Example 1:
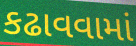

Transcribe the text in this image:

કઢાવવામાં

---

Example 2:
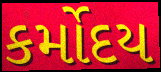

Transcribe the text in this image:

કર્મોદય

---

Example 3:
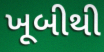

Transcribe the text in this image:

ખૂબીથી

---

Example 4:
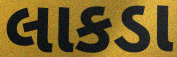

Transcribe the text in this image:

લાકડા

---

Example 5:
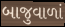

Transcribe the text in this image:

બાજુવાળાં